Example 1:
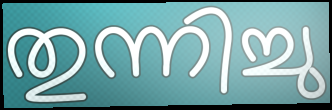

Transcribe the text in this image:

തുന്നിച്ചു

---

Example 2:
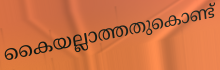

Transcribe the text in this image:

കൈയല്ലാത്തതുകൊണ്ട്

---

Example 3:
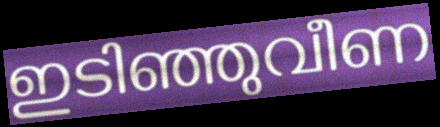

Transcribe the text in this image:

ഇടിഞ്ഞുവീണ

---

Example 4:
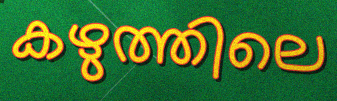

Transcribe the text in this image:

കഴുത്തിലെ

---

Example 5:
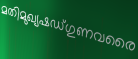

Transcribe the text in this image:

മതിമുഖ്യഷഡ്ഗുണവരൈ